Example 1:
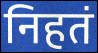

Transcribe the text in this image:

निहतं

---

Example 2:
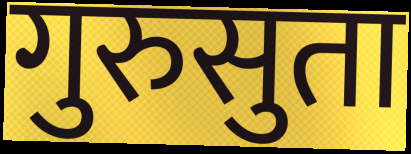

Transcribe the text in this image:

गुरुसुता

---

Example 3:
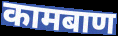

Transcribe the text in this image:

कामबाण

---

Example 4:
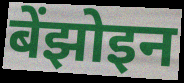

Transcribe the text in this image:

बेंझोइन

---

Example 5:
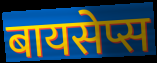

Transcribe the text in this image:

बायसेप्स